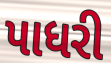
પાધરી